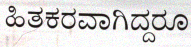
ಹಿತಕರವಾಗಿದ್ದರೂ